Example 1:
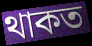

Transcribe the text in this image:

থাকত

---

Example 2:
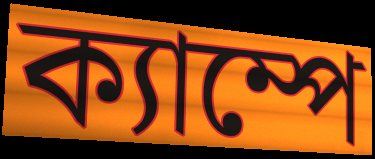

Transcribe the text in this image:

ক্যাম্পে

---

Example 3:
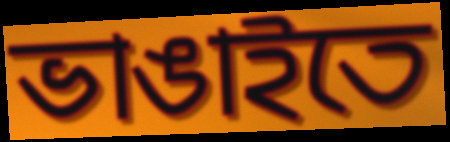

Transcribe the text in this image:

ভাঙাইতে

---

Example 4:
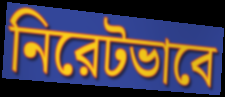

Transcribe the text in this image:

নিরেটভাবে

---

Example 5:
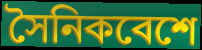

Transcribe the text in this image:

সৈনিকবেশে